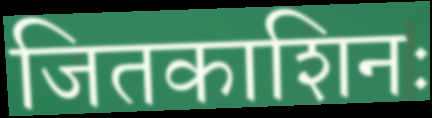
जितकाशिनः